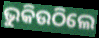
ଭୁକିଉଠିଲେ